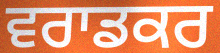
ਵਰਾਡਕਰ